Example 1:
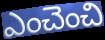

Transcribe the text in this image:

ఎంచెంచి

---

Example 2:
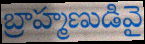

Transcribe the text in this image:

బ్రాహ్మణుడివై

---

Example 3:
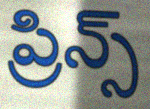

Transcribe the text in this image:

ప్రిన్స్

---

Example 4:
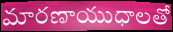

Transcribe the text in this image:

మారణాయుధాలతో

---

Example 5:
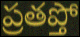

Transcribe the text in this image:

ప్రతప్తో